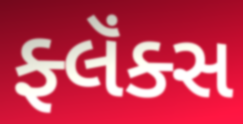
ફ્લૅંક્સ